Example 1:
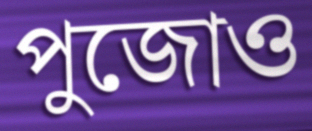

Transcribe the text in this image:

পুজোও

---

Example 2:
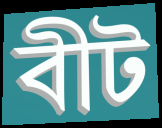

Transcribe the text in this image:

বীট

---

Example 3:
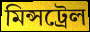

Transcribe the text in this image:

মিন্সট্রেল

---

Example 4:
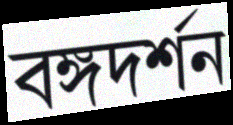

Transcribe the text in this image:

বঙ্গদর্শন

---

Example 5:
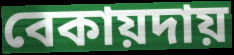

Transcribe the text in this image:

বেকায়দায়